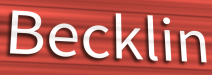
Becklin